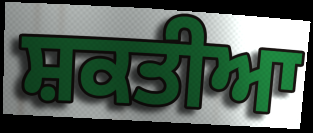
ਸ਼ਕਤੀਆ